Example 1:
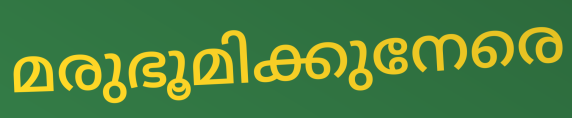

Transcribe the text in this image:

മരുഭൂമിക്കുനേരെ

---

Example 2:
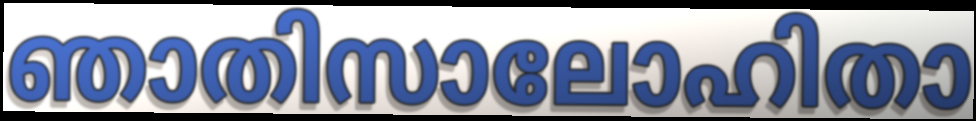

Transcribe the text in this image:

ഞാതിസാലോഹിതാ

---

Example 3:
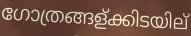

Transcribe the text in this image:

ഗോത്രങ്ങള്ക്കിടയില്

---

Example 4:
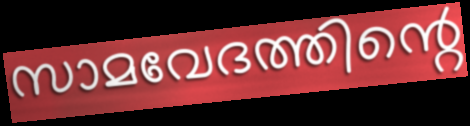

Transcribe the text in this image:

സാമവേദത്തിന്റെ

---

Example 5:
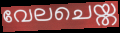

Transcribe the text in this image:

വേലചെയ്ത